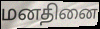
மனதினை